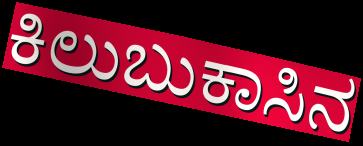
ಕಿಲುಬುಕಾಸಿನ